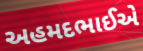
અહમદભાઈએ